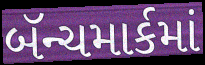
બૅન્ચમાર્કમાં